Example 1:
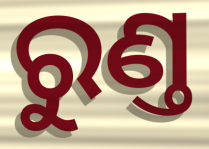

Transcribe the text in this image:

ରୁଣ୍ତ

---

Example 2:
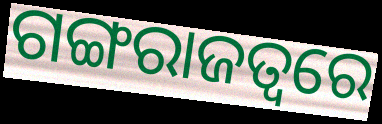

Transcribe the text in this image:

ଗଙ୍ଗରାଜତ୍ୱରେ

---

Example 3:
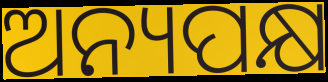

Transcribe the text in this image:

ଅନ୍ୟପକ୍ଷ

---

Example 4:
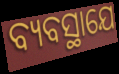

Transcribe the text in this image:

ବ୍ୟବସ୍ଥାଯେ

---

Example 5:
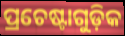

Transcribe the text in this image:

ପ୍ରଚେଷ୍ଟାଗୁଡ଼ିକ